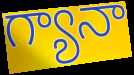
గ్యానా